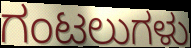
ಗಂಟಲುಗಳು